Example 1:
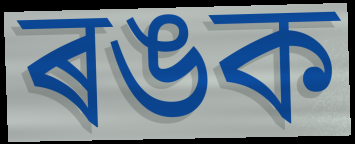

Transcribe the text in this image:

ৰঙক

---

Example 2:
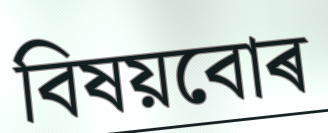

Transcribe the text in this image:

বিষয়বোৰ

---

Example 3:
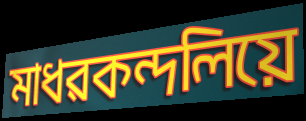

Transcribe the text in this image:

মাধৱকন্দলিয়ে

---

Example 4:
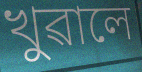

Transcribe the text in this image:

খুৱালে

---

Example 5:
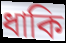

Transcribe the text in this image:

ধাকি